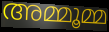
അമ്മൂമ്മ